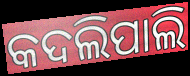
କଦଲିପାଲି